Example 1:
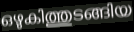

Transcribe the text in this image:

ഒഴുകിത്തുടങ്ങിയ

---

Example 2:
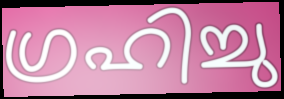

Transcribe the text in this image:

ഗ്രഹിച്ചു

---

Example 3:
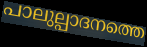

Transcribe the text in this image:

പാലുല്പാദനത്തെ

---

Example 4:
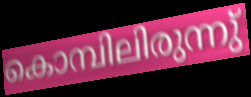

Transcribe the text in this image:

കൊമ്പിലിരുന്നു്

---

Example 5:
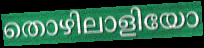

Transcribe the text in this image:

തൊഴിലാളിയോ